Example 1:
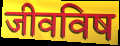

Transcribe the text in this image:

जीवविष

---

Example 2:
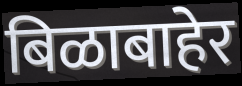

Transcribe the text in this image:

बिळाबाहेर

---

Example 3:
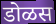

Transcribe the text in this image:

डोळस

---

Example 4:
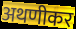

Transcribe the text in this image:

अथणीकर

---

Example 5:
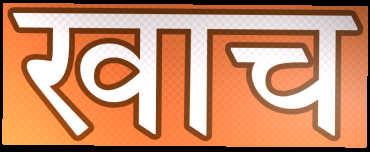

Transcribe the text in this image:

खाच